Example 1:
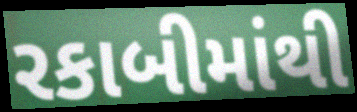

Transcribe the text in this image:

રકાબીમાંથી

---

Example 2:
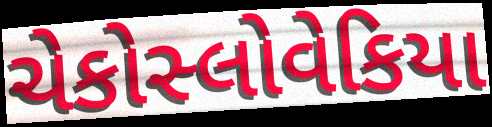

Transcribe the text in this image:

ચેકોસ્લોવેકિયા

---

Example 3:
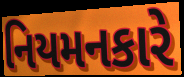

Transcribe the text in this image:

નિયમનકારે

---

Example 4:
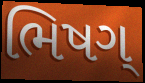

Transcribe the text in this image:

ભિષગ્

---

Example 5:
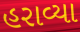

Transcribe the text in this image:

હરાવ્યા